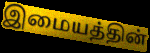
இமையத்தின்